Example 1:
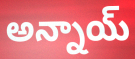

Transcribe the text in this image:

అన్నాయ్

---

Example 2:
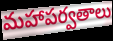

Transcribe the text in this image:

మహాపర్వతాలు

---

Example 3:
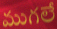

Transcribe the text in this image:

ముగలే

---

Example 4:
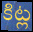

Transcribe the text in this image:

కిట్ల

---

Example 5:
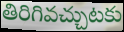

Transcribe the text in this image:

తిరిగివచ్చుటకు